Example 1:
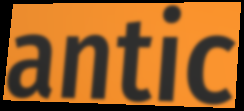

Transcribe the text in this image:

antic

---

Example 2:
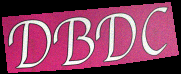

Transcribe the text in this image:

DBDC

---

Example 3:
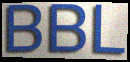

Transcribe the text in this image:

BBL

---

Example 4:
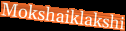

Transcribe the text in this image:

Mokshaiklakshi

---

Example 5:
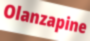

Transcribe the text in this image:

Olanzapine